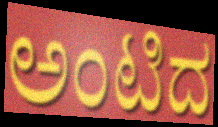
ಅಂಟಿದ